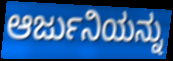
ಆರ್ಜುನಿಯನ್ನು